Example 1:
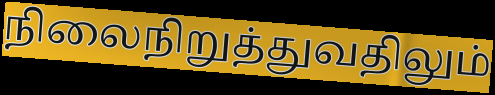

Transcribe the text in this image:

நிலைநிறுத்துவதிலும்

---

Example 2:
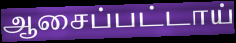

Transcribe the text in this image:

ஆசைப்பட்டாய்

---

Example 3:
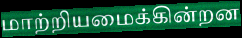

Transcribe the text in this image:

மாற்றியமைக்கின்றன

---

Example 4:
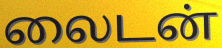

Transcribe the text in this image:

லைடன்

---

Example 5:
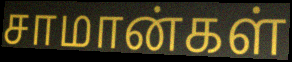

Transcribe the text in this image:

சாமான்கள்